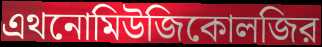
এথনোমিউজিকোলজির